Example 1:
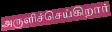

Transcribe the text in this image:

அருளிச்செய்கிறார்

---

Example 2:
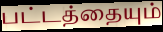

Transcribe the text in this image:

பட்டத்தையும்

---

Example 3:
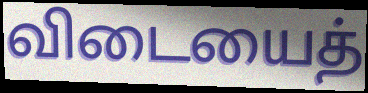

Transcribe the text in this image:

விடையைத்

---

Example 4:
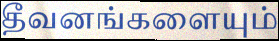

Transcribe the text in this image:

தீவனங்களையும்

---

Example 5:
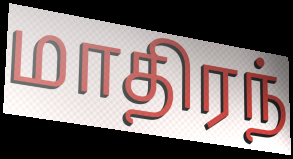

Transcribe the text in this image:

மாதிரந்